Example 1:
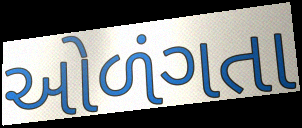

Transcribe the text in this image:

ઓળંગતા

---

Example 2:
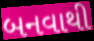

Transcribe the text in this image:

બનવાથી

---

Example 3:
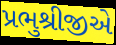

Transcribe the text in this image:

પ્રભુશ્રીજીએ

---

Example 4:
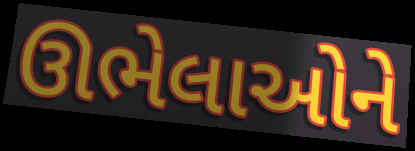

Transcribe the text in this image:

ઊભેલાઓને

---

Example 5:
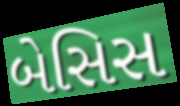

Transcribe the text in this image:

બેસિસ